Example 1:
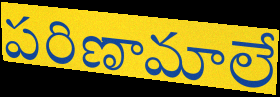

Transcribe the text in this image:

పరిణామాలే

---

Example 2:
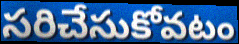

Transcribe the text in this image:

సరిచేసుకోవటం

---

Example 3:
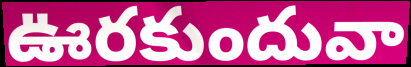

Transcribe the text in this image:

ఊరకుందువా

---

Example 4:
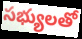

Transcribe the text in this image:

సభ్యులతో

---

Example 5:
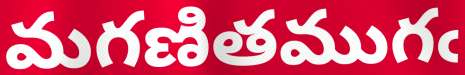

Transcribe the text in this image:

మగణితముగఁ